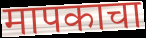
मापकाचा